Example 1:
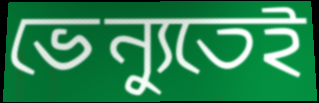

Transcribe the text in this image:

ভেন্যুতেই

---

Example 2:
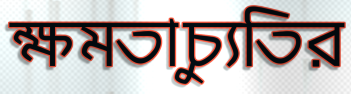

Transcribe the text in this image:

ক্ষমতাচ্যুতির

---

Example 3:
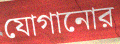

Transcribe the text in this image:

যোগানোর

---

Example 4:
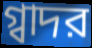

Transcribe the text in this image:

গ্বাদর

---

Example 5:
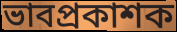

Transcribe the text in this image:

ভাবপ্রকাশক